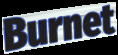
Burnet